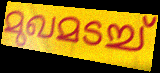
മുഖമടച്ച്